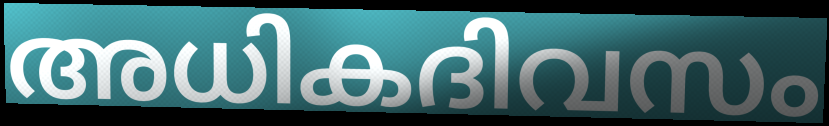
അധികദിവസം